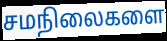
சமநிலைகளை